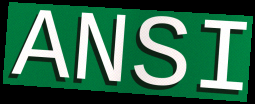
ANSI